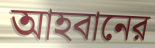
আহবানের